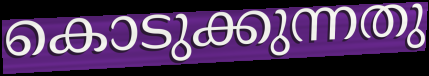
കൊടുക്കുന്നതു